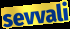
sevvali